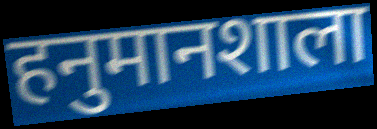
हनुमानशाला